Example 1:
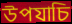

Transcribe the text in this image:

উপযাচি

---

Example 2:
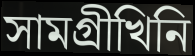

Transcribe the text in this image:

সামগ্ৰীখিনি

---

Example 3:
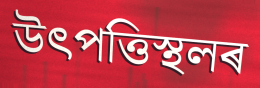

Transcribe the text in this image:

উৎপত্তিস্থলৰ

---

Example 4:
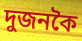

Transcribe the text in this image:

দুজনকৈ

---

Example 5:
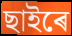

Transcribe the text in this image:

ছাইৰে